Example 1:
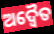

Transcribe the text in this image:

ଅଦ୍ୱୈତ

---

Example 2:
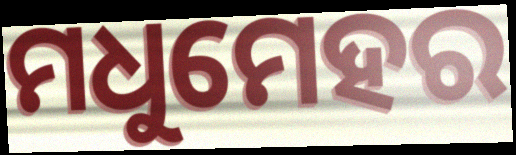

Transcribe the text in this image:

ମଧୁମେହର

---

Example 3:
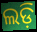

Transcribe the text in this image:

ଲଡ଼ି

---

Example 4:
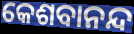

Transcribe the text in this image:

କେଶବାନନ୍ଦ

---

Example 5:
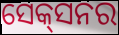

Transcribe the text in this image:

ସେକ୍‍ସନର